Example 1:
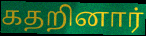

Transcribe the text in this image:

கதறினார்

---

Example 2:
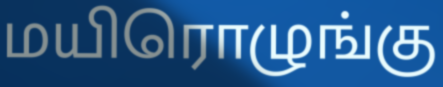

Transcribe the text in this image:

மயிரொழுங்கு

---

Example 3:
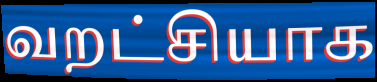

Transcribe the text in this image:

வறட்சியாக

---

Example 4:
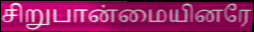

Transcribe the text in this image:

சிறுபான்மையினரே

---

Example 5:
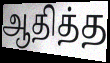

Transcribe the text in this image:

ஆதித்த